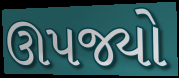
ઊપજ્યો